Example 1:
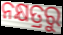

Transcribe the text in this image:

ନକ୍ଷତ୍ରରୁ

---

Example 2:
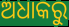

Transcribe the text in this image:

ଅଧାକରୁ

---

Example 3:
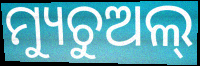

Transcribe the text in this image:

ମ୍ୟୁଚୁଅଲ୍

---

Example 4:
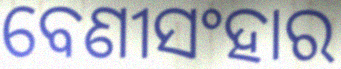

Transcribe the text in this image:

ବେଣୀସଂହାର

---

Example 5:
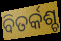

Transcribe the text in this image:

ବିତର୍କଶ୍ଚ